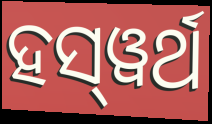
ହସ୍‌ୱର୍ଥ